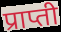
प्राप्ती